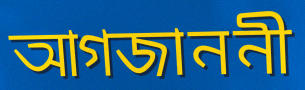
আগজাননী